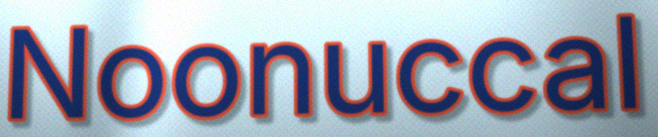
Noonuccal